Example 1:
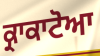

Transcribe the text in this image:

ਕ੍ਰਾਕਾਟੋਆ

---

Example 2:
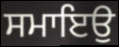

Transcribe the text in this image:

ਸਮਾਇਉ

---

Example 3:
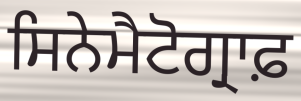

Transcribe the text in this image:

ਸਿਨੇਮੈਟੋਗ੍ਰਾਫ਼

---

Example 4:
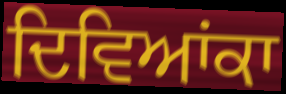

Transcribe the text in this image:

ਦਿਵਿਆਂਕਾ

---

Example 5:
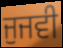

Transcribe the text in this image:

ਜੁਜਵੀ